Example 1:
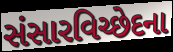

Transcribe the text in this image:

સંસારવિચ્છેદના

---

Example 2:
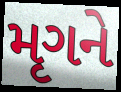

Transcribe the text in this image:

મૃગને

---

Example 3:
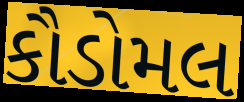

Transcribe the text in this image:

કૌડોમલ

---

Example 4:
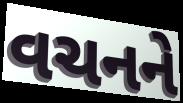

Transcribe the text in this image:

વચનને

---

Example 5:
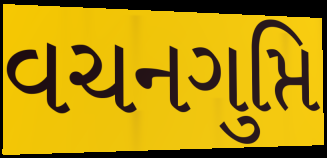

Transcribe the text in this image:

વચનગુપ્તિ